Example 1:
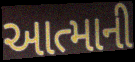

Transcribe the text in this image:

આત્માની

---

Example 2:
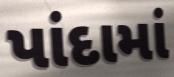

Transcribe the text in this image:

પાંદામાં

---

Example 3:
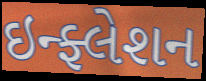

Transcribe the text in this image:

ઇન્ફ્લેશન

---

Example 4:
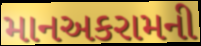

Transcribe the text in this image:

માનઅકરામની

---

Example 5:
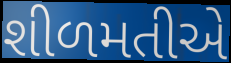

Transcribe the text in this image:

શીળમતીએ